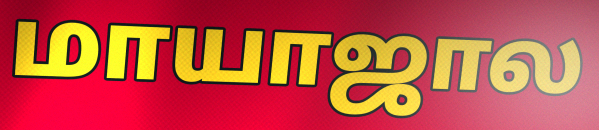
மாயாஜால